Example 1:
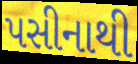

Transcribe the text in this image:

પસીનાથી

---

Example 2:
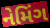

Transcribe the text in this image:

નેમિંગ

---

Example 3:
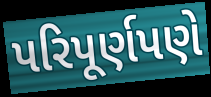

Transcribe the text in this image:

પરિપૂર્ણપણે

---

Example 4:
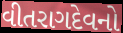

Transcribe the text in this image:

વીતરાગદેવનો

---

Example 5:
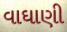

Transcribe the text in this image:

વાઘાણી